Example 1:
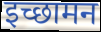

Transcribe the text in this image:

इच्छामन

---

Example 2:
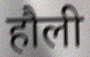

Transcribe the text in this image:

हौली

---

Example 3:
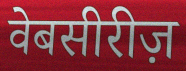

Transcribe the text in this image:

वेबसीरीज़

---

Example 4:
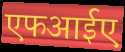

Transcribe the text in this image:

एफआईए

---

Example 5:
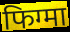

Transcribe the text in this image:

फिग्मा